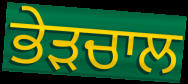
ਭੇੜਚਾਲ